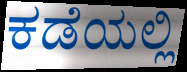
ಕಡೆಯಲ್ಲಿ